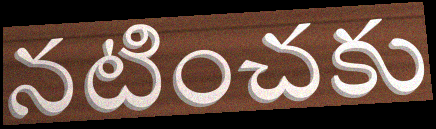
నటించకు